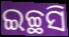
ଇଚ୍ଛସି